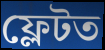
ফ্লেটত